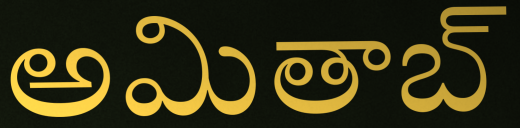
అమితాబ్